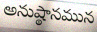
అనుష్ఠానమున